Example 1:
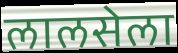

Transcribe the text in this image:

लालसेला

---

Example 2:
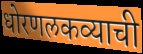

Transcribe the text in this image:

धोरणलकव्याची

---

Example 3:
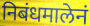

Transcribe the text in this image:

निबंधमालेनं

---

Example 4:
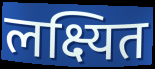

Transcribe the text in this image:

लक्ष्यित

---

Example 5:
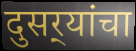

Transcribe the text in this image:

दुसर्यांचा